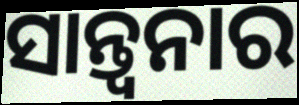
ସାନ୍ତ୍ୱନାର